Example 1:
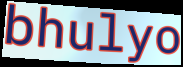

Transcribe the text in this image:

bhulyo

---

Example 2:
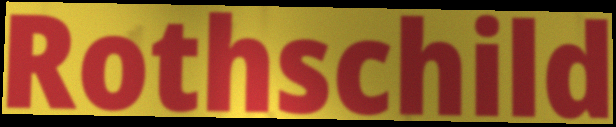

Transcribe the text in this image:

Rothschild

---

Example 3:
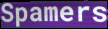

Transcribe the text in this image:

Spamers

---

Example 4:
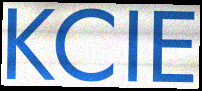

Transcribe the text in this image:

KCIE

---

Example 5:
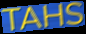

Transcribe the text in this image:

TAHS